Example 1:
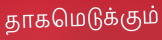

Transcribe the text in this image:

தாகமெடுக்கும்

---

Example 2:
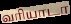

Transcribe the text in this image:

வரியாடா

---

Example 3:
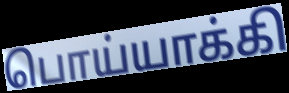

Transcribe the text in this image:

பொய்யாக்கி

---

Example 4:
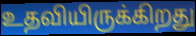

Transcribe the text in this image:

உதவியிருக்கிறது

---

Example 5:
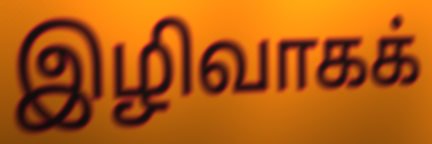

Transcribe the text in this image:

இழிவாகக்